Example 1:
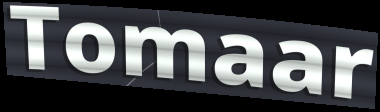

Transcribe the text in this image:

Tomaar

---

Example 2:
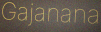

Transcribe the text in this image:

Gajanana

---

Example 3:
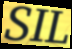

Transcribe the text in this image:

SIL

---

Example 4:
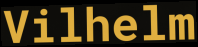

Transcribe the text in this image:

Vilhelm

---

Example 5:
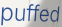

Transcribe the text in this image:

puffed